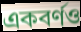
একবর্ণও